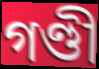
গণ্ডী